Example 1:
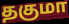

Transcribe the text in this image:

தகுமா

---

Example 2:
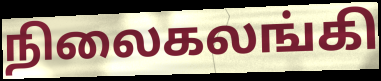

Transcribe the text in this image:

நிலைகலங்கி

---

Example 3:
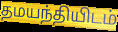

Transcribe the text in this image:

தமயந்தியிடம்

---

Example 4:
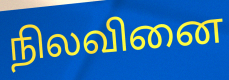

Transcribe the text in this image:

நிலவினை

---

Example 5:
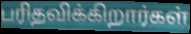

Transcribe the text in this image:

பரிதவிக்கிறார்கள்